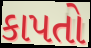
કાપતો